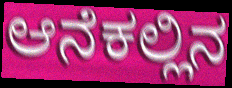
ಆನೆಕಲ್ಲಿನ